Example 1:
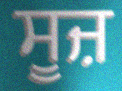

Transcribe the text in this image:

ਸੂਜ਼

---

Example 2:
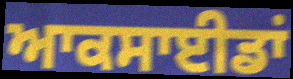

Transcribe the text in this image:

ਆਕਸਾਈਡਾਂ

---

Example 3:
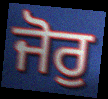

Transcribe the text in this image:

ਜੋਰੁ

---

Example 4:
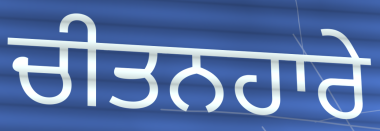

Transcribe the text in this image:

ਚੀਤਨਹਾਰੇ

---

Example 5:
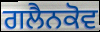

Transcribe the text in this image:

ਗਲੈਨਕੋਵ